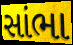
સાંભા